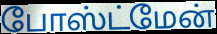
போஸ்ட்மேன்